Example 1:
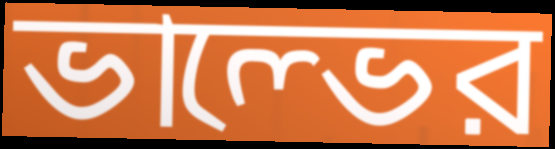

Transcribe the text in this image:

ভাল্ভের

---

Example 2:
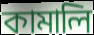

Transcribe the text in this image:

কামালি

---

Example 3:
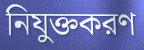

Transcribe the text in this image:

নিযুক্তকরণ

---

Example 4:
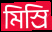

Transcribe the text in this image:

মিস্রি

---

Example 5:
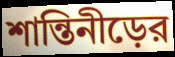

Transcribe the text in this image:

শান্তিনীড়ের